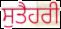
ਸੁਤੈਹਰੀ